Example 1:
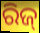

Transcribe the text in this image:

ରିଜ୍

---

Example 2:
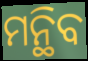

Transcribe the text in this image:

ମନ୍ଥିବ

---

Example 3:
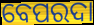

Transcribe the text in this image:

ବେପରଦା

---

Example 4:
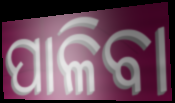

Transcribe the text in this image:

ପାଳିବା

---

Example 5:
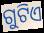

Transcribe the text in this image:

ଗୁଟିଏ